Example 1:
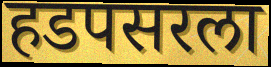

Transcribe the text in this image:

हडपसरला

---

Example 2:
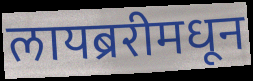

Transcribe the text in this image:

लायब्ररीमधून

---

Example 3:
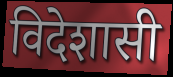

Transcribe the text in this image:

विदेशासी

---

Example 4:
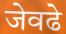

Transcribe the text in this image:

जेवढे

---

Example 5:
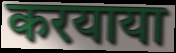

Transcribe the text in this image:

करयाया